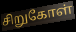
சிறுகோள்